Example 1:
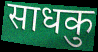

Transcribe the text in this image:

साधकु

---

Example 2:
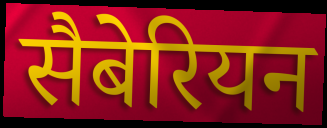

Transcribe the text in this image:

सैबेरियन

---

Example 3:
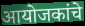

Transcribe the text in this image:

आयोजकांचे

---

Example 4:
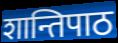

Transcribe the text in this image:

शान्तिपाठ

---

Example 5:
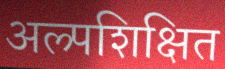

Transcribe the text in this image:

अल्पशिक्षित